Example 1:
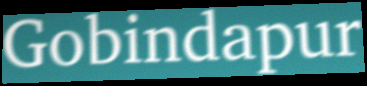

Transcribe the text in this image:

Gobindapur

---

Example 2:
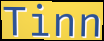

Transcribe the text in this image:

Tinn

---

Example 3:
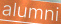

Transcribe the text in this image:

alumni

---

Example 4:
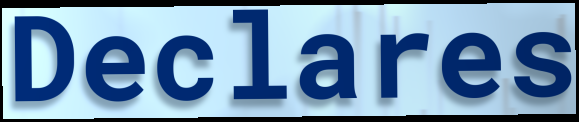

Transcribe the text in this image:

Declares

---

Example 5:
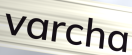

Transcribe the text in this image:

varcha